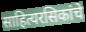
साहित्यरसिकांचे